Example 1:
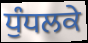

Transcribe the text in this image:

ਧੁੰਧਲਕੇ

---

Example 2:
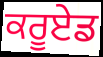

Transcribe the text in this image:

ਕਰੂਏਡ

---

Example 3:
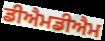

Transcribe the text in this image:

ਡੀਐਮਡੀਐਮ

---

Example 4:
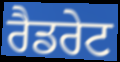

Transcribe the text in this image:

ਰੈਡਰੇਟ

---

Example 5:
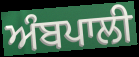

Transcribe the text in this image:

ਅੰਬਪਾਲੀ